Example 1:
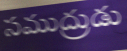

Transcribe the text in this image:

సముద్రుడు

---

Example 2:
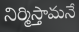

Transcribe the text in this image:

నిర్మిస్తామనే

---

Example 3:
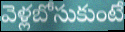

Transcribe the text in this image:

వెళ్లబోసుకుంటే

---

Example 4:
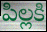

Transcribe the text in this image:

పిల్లకి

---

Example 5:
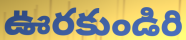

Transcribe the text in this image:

ఊరకుండిరి